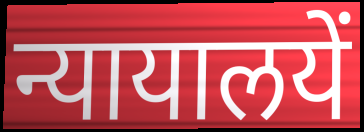
न्यायालयें